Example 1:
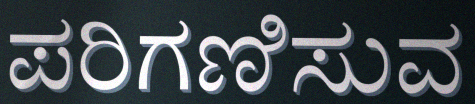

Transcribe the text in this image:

ಪರಿಗಣಿಸುವ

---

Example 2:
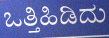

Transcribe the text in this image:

ಒತ್ತಿಹಿಡಿದು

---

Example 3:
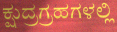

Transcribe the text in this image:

ಕ್ಷುದ್ರಗ್ರಹಗಳಲ್ಲಿ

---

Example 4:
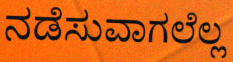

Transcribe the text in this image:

ನಡೆಸುವಾಗಲೆಲ್ಲ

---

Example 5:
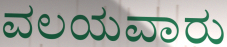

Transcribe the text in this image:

ವಲಯವಾರು